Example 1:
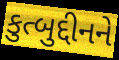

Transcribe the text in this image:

કુત્બુદ્દીનને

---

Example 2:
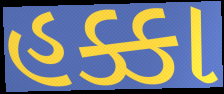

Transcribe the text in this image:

હક્કા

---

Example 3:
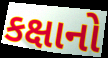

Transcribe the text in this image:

કક્ષાનો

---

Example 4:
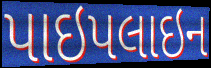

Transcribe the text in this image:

પાઇપલાઇન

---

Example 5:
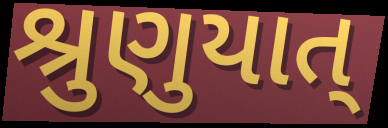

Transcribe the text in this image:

શ્રુણુયાત્